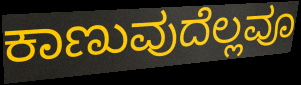
ಕಾಣುವುದೆಲ್ಲವೂ